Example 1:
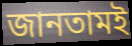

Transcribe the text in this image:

জানতামই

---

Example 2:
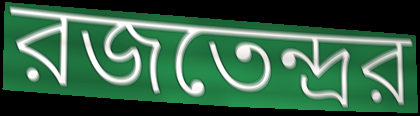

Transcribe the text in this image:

রজতেন্দ্রর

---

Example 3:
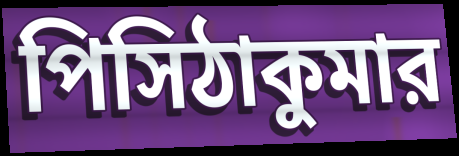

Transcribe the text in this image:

পিসিঠাকুমার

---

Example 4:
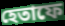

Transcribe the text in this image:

হেতাফে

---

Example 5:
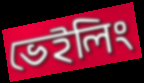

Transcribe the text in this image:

ভেইলিং